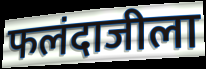
फलंदाजीला